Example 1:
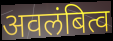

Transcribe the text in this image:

अवलंबित्व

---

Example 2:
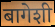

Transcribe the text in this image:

बागेशी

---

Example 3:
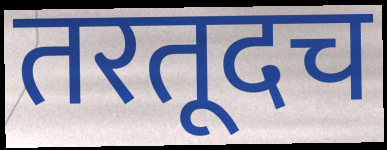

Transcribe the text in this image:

तरतूदच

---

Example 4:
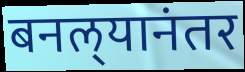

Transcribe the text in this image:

बनल्यानंतर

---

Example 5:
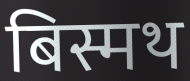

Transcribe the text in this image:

बिस्मथ